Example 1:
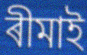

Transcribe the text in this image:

ৰীমাই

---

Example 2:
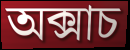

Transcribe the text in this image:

অক্সাচ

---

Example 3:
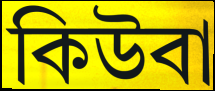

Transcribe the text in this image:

কিউবা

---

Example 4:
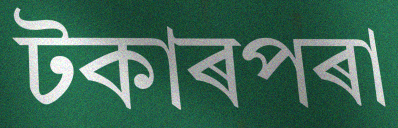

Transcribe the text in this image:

টকাৰপৰা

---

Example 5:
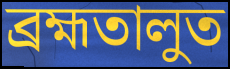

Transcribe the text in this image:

ব্ৰহ্মতালুত